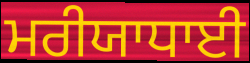
ਮਰੀਯਾਧਾਈ